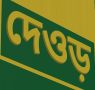
দেওড়